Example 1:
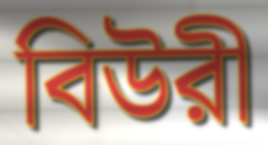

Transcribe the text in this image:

বিউরী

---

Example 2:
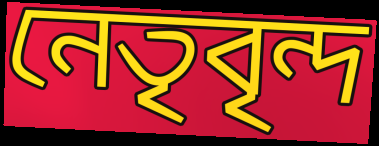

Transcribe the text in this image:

নেতৃবৃন্দ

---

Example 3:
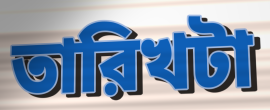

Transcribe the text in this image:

তারিখটা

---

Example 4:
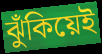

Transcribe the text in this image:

ঝুঁকিয়েই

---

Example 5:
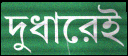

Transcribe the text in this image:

দুধারেই